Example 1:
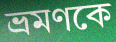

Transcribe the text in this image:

ভ্রমণকে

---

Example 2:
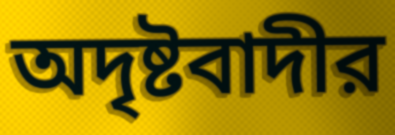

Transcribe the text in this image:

অদৃষ্টবাদীর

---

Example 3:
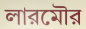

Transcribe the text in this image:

লারমৌর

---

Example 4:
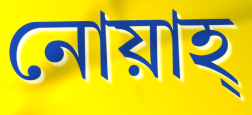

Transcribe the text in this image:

নোয়াহ্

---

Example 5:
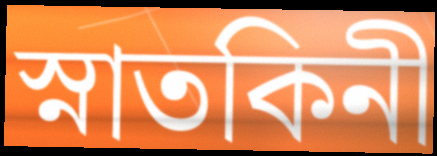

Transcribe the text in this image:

স্নাতকিনী